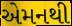
એમનથી